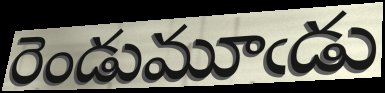
రెండుమూఁడు